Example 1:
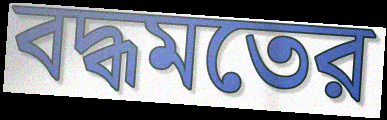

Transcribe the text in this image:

বদ্ধমতের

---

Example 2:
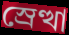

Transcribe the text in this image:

স্রেত্থা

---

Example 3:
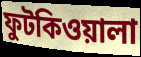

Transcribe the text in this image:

ফুটকিওয়ালা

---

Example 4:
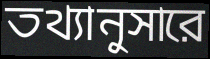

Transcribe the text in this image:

তথ্যানুসারে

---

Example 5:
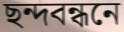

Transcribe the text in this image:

ছন্দবন্ধনে